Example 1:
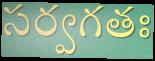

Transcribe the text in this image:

సర్వగతః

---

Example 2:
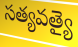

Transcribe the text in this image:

సత్యవత్యై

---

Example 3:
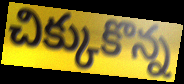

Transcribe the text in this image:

చిక్కుకొన్న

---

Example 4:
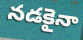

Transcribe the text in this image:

నడకైనా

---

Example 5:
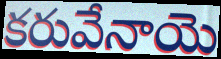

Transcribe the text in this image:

కరువేనాయె